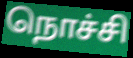
நொச்சி